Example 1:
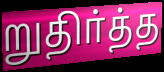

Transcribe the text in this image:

றுதிர்த்த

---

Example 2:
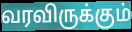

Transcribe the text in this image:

வரவிருக்கும்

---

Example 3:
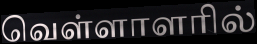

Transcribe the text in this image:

வெள்ளாளரில்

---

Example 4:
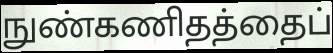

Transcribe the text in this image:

நுண்கணிதத்தைப்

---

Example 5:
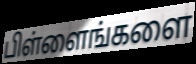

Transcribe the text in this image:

பிள்ளைங்களை